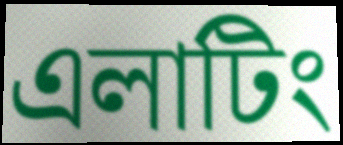
এলাটিং